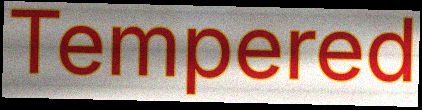
Tempered